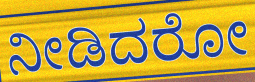
ನೀಡಿದರೋ